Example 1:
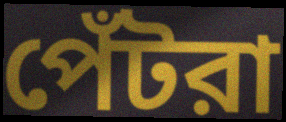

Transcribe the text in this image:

পেঁটরা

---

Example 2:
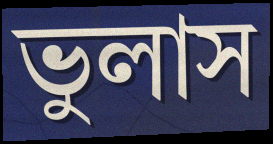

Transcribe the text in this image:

ভুলাস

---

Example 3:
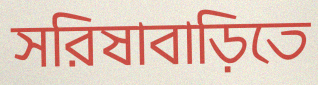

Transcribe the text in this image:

সরিষাবাড়িতে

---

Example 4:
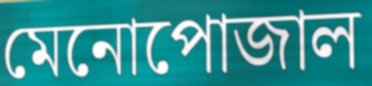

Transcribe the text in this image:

মেনোপোজাল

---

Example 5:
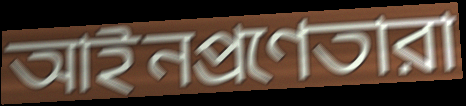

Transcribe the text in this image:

আইনপ্রণেতারা